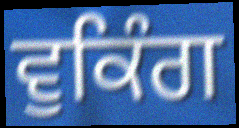
ਵੁਕਿੰਗ